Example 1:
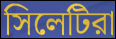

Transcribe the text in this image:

সিলেটিরা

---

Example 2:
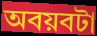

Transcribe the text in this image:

অবয়বটা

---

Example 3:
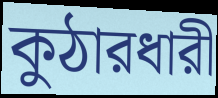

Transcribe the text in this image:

কুঠারধারী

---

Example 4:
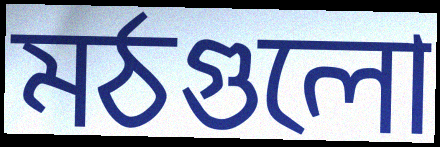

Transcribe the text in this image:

মঠগুলো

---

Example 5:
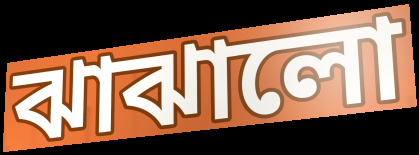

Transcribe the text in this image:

ঝাঝালো